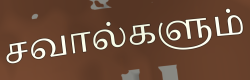
சவால்களும்